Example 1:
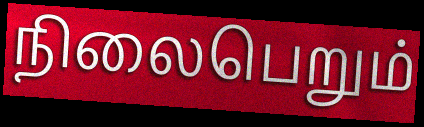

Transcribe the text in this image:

நிலைபெறும்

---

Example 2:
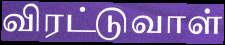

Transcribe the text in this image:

விரட்டுவாள்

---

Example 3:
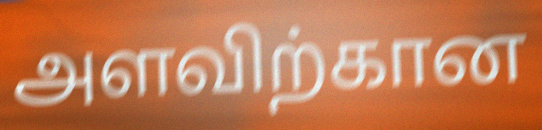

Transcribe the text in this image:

அளவிற்கான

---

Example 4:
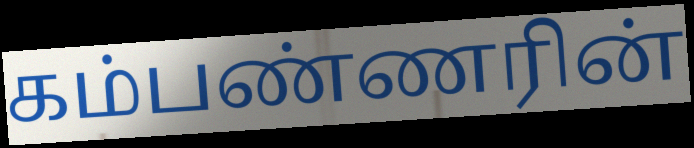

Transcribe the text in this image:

கம்பண்ணரின்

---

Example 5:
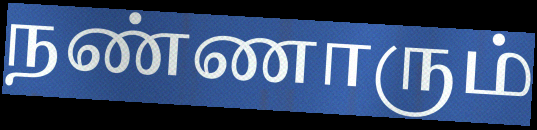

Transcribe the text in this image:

நண்ணாரும்